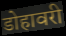
डोहावरी